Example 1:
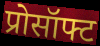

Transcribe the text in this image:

प्रोसॉफ्ट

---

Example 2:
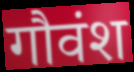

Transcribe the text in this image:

गौवंश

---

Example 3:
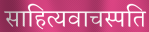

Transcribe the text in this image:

साहित्यवाचस्पति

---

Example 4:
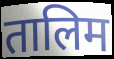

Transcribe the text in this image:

तालिम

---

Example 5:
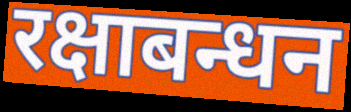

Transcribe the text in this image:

रक्षाबन्धन